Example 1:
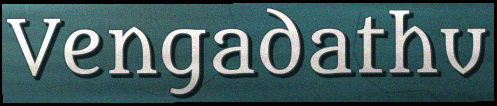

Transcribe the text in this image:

Vengadathu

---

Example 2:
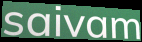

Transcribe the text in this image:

saivam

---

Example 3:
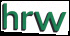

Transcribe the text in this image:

hrw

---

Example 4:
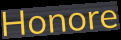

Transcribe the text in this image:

Honore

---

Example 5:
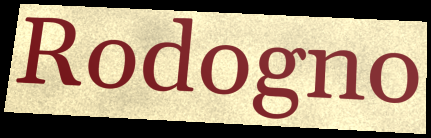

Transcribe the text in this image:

Rodogno